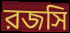
রজসি